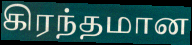
கிரந்தமான